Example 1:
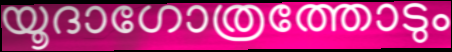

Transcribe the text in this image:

യൂദാഗോത്രത്തോടും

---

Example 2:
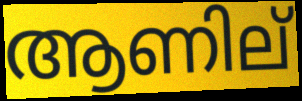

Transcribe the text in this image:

ആണില്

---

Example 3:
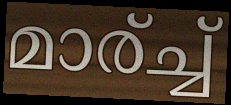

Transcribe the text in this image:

മാര്ച്ച്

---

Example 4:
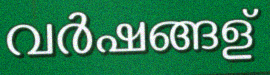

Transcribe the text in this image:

വർഷങ്ങള്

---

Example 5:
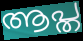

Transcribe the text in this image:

ആപ്ത